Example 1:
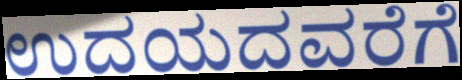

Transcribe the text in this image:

ಉದಯದವರೆಗೆ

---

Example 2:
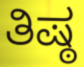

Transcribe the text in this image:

ತಿಷ್ಠ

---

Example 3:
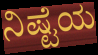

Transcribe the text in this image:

ನಿಷ್ಟೆಯ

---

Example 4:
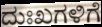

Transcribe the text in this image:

ದುಃಖಗಳಿಗೆ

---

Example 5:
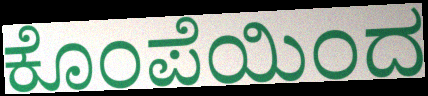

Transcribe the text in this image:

ಕೊಂಪೆಯಿಂದ